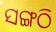
ସଙ୍ଗଠି